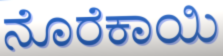
ನೊರೆಕಾಯಿ